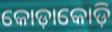
କୋଡ଼ାକୋଡ଼ି